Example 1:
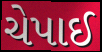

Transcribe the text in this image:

ચેપાઈ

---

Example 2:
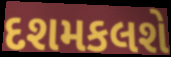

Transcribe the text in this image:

દશમકલશે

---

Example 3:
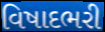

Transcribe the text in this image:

વિષાદભરી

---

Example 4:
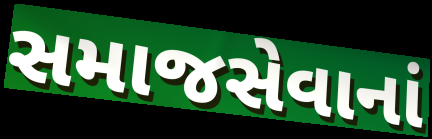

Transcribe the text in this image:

સમાજસેવાનાં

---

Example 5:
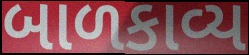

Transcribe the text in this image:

બાળકાવ્ય